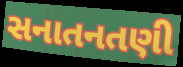
સનાતનતણી